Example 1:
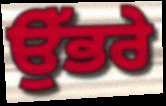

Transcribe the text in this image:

ਉੱਭਰੇ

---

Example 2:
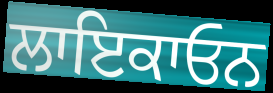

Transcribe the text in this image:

ਲਾਇਕਾਓਨ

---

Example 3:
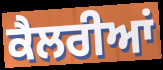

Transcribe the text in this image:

ਕੈਲਰੀਆਂ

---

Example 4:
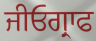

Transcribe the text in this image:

ਜੀਓਗ੍ਰਾਫ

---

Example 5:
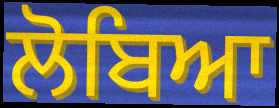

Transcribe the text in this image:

ਲੋਬਿਆ